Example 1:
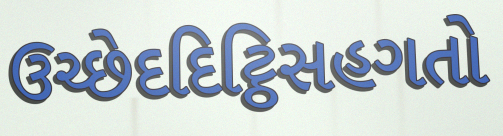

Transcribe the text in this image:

ઉચ્છેદદિટ્ઠિસહગતો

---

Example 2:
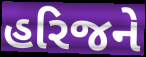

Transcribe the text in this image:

હરિજને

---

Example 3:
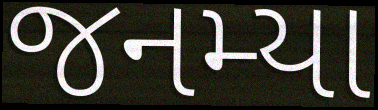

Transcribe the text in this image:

જનમ્યા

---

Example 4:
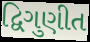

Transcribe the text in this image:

દ્વિગુણીત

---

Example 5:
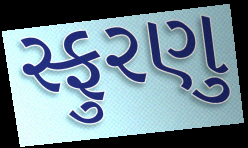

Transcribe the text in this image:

સ્ફુરણુ